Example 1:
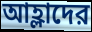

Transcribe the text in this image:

আহ্লাদের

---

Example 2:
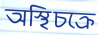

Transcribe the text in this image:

অস্থিচক্রে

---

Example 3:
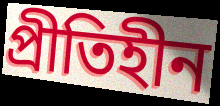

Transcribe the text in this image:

প্রীতিহীন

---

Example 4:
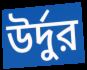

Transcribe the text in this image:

উর্দুর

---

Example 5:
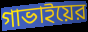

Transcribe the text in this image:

গাভাইয়ের